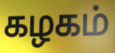
கழகம்